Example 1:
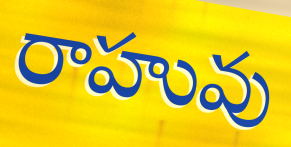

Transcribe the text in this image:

రాహువు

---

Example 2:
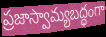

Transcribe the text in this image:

ప్రజాస్వామ్యబద్ధంగా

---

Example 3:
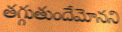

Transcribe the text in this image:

తగ్గుతుందేమోనని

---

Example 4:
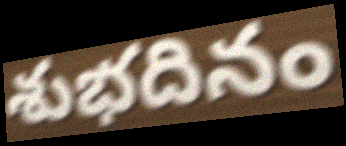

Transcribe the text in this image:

శుభదినం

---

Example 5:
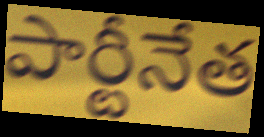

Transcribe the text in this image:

పార్టీనేత